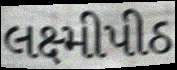
લક્ષ્મીપીઠ